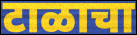
टाळाचा